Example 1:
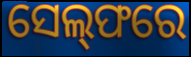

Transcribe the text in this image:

ସେଲ୍‌ଫରେ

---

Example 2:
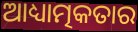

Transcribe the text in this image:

ଆଧ୍ୟାତ୍ମକତାର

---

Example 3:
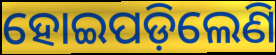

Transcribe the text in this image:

ହୋଇପଡ଼ିଲେଣି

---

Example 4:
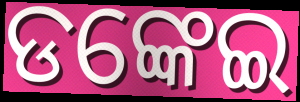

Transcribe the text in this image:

ଡଙ୍କେଇ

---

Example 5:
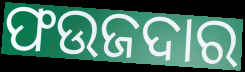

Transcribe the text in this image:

ଫଉଜଦାର